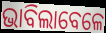
ଭାବିଲାବେଳେ